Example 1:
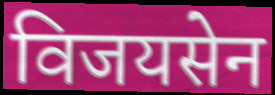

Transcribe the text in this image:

विजयसेन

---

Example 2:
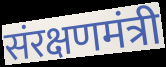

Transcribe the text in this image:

संरक्षणमंत्री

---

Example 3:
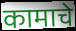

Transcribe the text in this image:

कामाचे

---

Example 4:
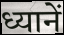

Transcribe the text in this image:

ध्यानें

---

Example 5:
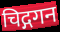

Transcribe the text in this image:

चिद्गगन